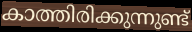
കാത്തിരിക്കുന്നുണ്ട്